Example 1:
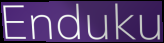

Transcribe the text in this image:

Enduku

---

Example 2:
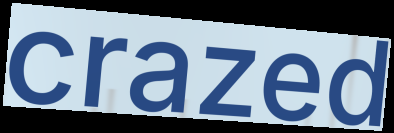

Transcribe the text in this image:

crazed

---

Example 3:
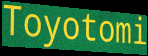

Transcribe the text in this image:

Toyotomi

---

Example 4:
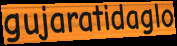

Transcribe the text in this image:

gujaratidaglo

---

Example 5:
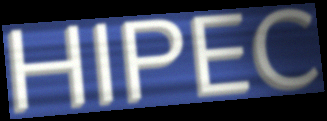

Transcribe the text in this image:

HIPEC